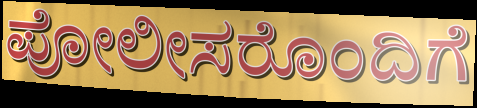
ಪೋಲೀಸರೊಂದಿಗೆ